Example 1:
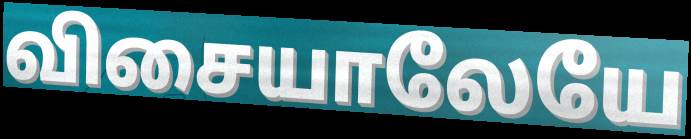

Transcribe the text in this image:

விசையாலேயே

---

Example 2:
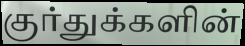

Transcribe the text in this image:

குர்துக்களின்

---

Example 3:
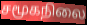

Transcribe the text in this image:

சமூகநிலை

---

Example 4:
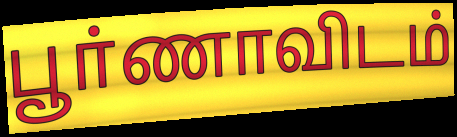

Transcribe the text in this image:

பூர்ணாவிடம்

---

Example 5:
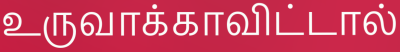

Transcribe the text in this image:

உருவாக்காவிட்டால்